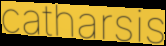
catharsis